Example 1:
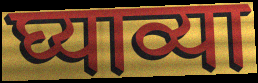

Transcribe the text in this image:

घ्याव्या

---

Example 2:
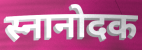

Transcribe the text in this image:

स्नानोदक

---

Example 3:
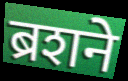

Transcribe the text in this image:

ब्रशने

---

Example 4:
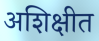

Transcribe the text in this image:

अशिक्षीत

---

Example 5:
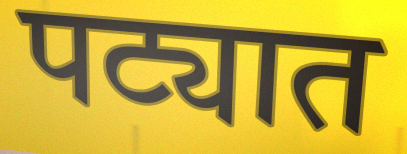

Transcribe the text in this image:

पट्यात